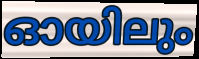
ഓയിലും